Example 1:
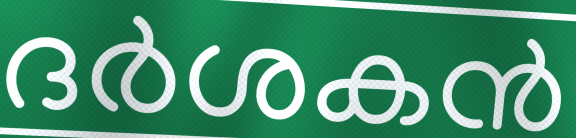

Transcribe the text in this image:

ദർശകൻ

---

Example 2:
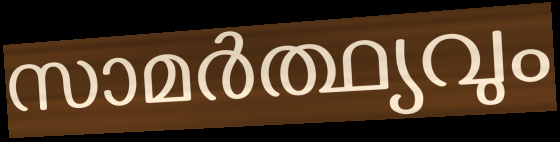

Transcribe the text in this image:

സാമർത്ഥ്യവും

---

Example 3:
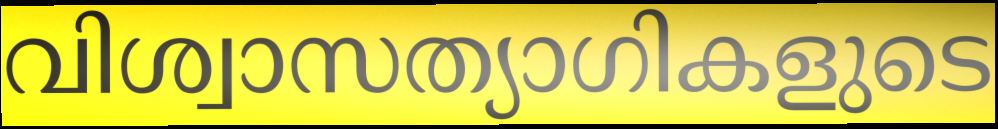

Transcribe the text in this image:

വിശ്വാസത്യാഗികളുടെ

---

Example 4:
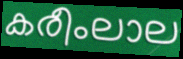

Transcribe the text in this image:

കരീംലാല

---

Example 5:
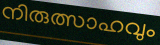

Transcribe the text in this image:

നിരുത്സാഹവും